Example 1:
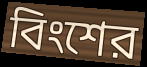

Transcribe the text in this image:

বিংশের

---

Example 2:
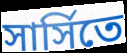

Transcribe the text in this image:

সার্সিতে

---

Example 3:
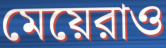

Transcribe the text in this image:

মেয়েরাও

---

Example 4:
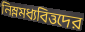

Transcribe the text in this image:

নিম্নমধ্যবিত্তদের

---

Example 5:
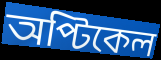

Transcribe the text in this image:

অপ্টিকেল